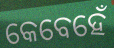
କେବେହେଁ